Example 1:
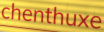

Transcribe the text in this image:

chenthuxe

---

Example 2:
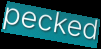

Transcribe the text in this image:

pecked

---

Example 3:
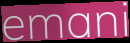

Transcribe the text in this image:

emani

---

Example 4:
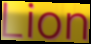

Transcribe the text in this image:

Lion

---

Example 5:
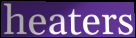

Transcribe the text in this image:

heaters